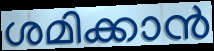
ശമിക്കാൻ